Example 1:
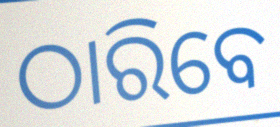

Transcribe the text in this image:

ଠାରିବେ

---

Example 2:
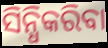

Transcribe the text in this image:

ସିନ୍ଧିକରିବା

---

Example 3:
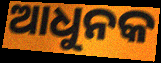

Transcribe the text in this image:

ଆଧୁନକ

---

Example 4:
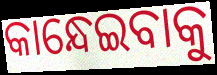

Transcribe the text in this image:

କାନ୍ଧେଇବାକୁ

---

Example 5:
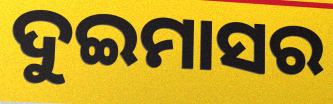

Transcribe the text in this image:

ଦୁଇମାସର